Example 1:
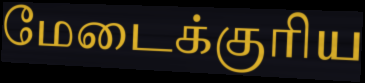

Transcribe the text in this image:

மேடைக்குரிய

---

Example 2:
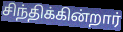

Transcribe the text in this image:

சிந்திக்கின்றார்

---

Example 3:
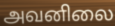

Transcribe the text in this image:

அவனிலை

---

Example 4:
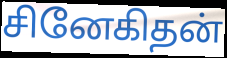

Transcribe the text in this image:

சினேகிதன்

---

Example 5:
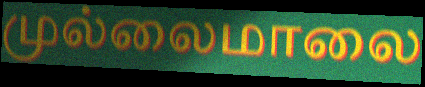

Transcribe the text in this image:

முல்லைமாலை